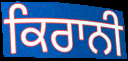
ਕਿਰਾਨੀ